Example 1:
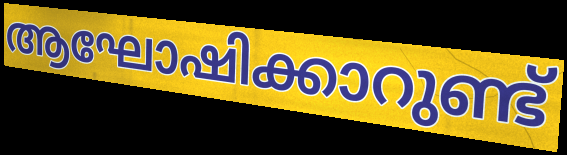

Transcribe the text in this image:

ആഘോഷിക്കാറുണ്ട്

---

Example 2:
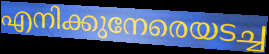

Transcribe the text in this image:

എനിക്കുനേരെയടച്ച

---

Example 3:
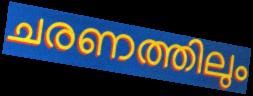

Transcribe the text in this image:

ചരണത്തിലും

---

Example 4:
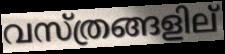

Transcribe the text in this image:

വസ്ത്രങ്ങളില്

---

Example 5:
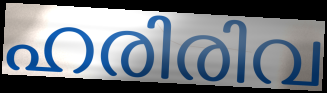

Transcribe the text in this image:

ഹരിരിവ